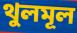
থুলমূল